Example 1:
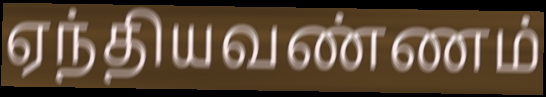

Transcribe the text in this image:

ஏந்தியவண்ணம்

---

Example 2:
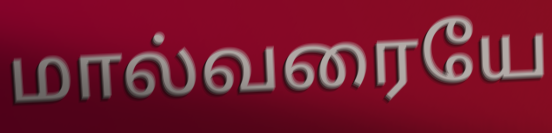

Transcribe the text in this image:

மால்வரையே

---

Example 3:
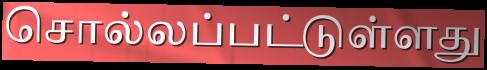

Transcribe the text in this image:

சொல்லப்பட்டுள்ளது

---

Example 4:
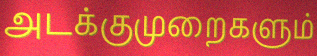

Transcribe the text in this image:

அடக்குமுறைகளும்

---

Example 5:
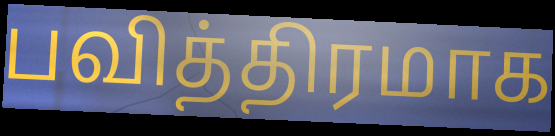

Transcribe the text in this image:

பவித்திரமாக